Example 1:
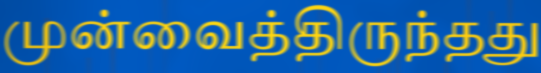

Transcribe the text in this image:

முன்வைத்திருந்தது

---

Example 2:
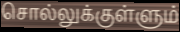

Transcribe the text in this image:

சொல்லுக்குள்ளும்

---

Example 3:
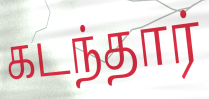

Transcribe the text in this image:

கடந்தார்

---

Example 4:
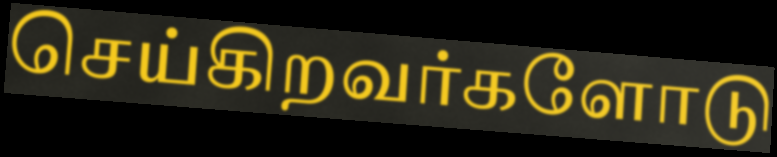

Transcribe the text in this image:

செய்கிறவர்களோடு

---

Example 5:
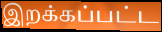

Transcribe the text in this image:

இறக்கப்பட்ட